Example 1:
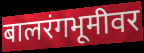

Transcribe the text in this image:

बालरंगभूमीवर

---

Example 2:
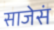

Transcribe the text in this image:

साजेसं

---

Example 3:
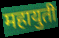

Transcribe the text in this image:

महायुती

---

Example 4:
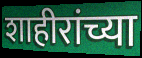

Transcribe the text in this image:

शाहीरांच्या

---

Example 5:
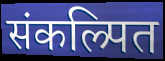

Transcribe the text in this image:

संकल्पित